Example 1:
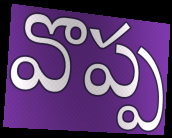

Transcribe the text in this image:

వొప్ప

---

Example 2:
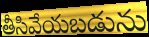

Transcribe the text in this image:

తీసివేయబడును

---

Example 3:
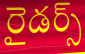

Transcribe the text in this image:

రైడర్స్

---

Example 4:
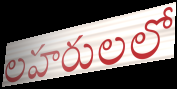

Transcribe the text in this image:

లహరులలో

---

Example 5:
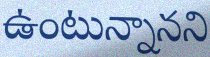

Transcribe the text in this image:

ఉంటున్నానని